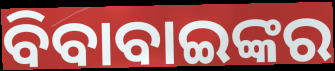
ବିବାବାଇଙ୍କର